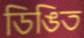
ডিঙিত